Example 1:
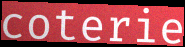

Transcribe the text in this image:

coterie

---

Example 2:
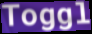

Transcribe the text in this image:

Toggl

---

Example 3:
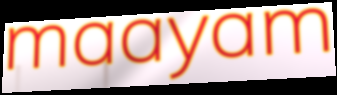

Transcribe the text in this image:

maayam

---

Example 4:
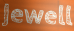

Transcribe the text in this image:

Jewell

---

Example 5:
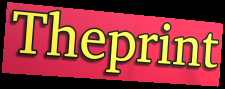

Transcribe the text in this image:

Theprint